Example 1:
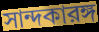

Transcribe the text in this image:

সান্দকারঙ্গ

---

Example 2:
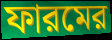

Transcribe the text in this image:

ফারমের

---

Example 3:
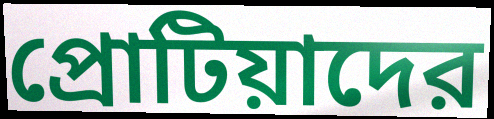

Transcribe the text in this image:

প্রোটিয়াদের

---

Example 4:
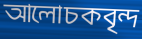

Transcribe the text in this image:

আলোচকবৃন্দ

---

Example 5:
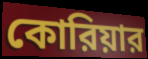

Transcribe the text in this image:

কোরিয়ার